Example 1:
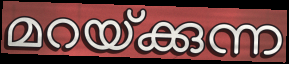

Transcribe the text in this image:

മറയ്‌ക്കുന്ന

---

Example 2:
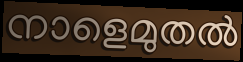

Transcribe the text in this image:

നാളെമുതൽ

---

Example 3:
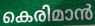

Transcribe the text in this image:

കെരിമാൻ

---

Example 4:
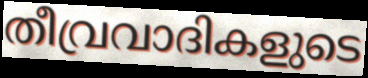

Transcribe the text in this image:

തീവ്രവാദികളുടെ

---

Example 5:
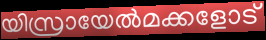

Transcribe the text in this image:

യിസ്രായേൽമക്കളോട്